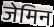
जेमिन